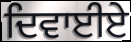
ਦਿਵਾਈਏ